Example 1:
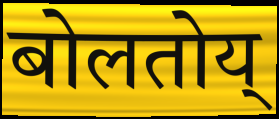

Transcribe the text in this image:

बोलतोय्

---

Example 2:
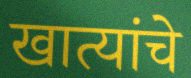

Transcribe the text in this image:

खात्यांचे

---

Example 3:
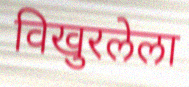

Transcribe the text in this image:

विखुरलेला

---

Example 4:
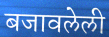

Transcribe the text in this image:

बजावलेली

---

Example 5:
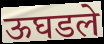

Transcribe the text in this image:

ऊघडले